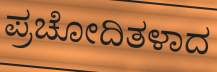
ಪ್ರಚೋದಿತಳಾದ